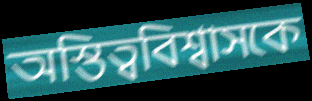
অস্তিত্ববিশ্বাসকে